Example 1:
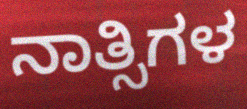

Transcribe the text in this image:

ನಾತ್ಸಿಗಳ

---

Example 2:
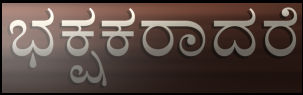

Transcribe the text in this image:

ಭಕ್ಷಕರಾದರೆ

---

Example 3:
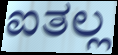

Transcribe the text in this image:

ಐತಲ್ಲ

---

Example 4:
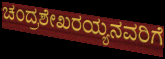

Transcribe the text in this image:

ಚಂದ್ರಶೇಖರಯ್ಯನವರಿಗೆ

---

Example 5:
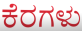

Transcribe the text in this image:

ಕೆರಗಳು